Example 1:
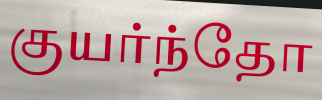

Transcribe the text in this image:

குயர்ந்தோ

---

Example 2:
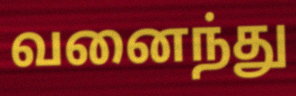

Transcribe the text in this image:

வனைந்து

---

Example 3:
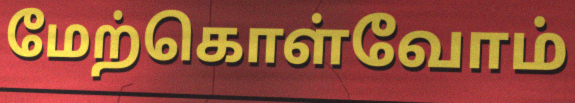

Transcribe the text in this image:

மேற்கொள்வோம்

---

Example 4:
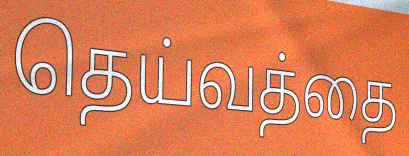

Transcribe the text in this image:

தெய்வத்தை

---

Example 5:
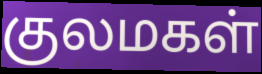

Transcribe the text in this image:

குலமகள்